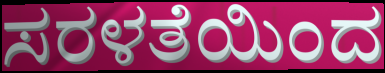
ಸರಳತೆಯಿಂದ